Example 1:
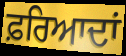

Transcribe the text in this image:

ਫ਼ਰਿਆਦਾਂ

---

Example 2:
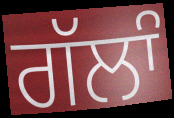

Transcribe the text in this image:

ਗੱਲਾੰ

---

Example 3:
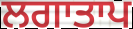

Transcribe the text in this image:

ਲਗਾਤਾਪ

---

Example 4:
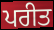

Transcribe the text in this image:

ਪਰੀਤ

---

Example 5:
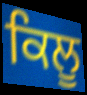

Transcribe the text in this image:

ਕਿਲੂ